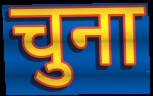
चुना